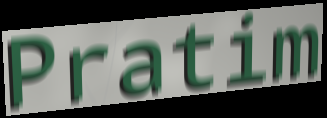
Pratim